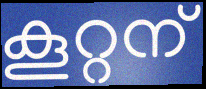
കൂറ്റന്